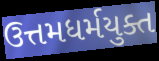
ઉત્તમધર્મયુક્ત